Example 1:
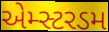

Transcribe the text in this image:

એમ્સ્ટરડમ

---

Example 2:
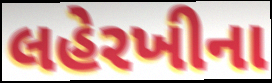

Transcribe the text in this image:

લહેરખીના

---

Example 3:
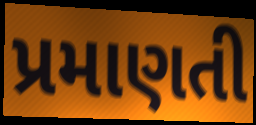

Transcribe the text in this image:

પ્રમાણતી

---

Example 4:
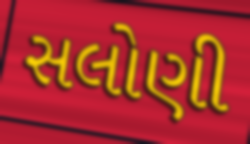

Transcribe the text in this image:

સલોણી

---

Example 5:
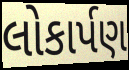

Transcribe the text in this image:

લોકાર્પણ